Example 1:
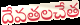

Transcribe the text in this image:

దేవతలచేత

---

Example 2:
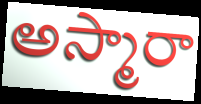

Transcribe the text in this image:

అస్మారా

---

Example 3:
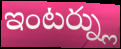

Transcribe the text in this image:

ఇంటర్న్లు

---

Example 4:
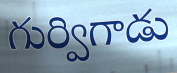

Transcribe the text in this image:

గుర్విగాడు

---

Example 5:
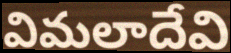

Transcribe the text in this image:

విమలాదేవి